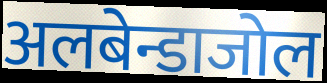
अलबेन्डाजोल